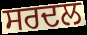
ਸਰਦਲ